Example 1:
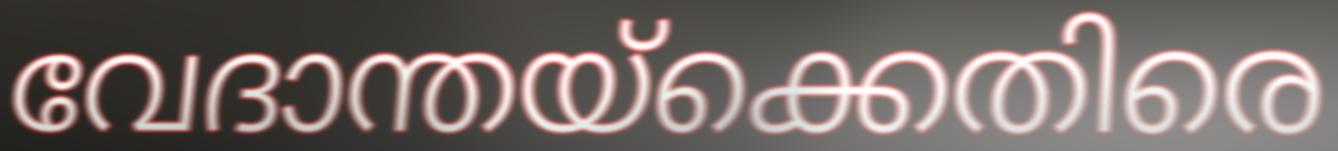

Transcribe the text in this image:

വേദാന്തയ്ക്കെതിരെ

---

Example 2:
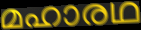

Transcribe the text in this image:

മഹാരഥ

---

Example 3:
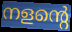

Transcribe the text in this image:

നളന്റെ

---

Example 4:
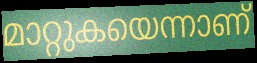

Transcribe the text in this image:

മാറ്റുകയെന്നാണ്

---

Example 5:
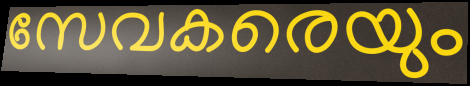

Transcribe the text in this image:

സേവകരെയും